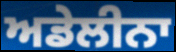
ਅਡੇਲੀਨਾ